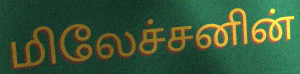
மிலேச்சனின்